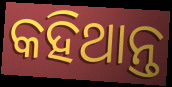
କହିଥାନ୍ତ